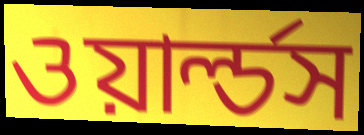
ওয়ার্ল্ডস